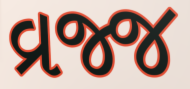
વ્રજ્જ